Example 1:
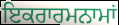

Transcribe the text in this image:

ਇਕਰਾਰਮਨਾਮਾਂ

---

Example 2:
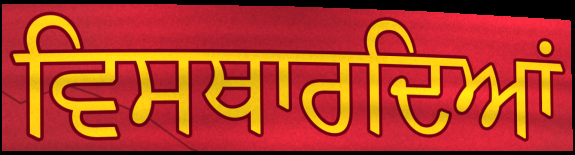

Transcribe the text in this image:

ਵਿਸਥਾਰਦਿਆਂ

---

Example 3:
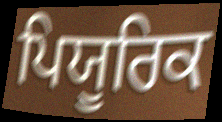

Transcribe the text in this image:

ਪਿਯੂਰਿਕ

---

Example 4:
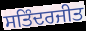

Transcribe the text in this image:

ਸਤਿੰਦਰਜੀਤ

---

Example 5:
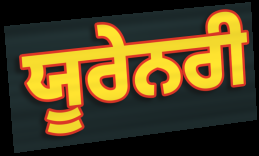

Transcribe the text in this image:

ਯੂਰੇਨਰੀ